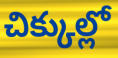
చిక్కుల్లో